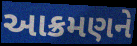
આક્રમણને